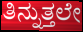
ತಿನ್ನುತ್ತಲೇ